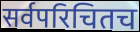
सर्वपरिचितच